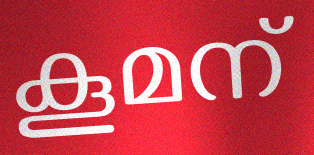
കൂമന്